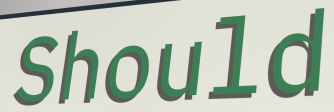
Should